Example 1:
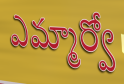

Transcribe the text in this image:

ఎమ్మార్వో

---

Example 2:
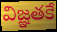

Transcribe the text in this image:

విజ్ఞతకే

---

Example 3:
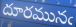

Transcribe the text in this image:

దూరమునఁ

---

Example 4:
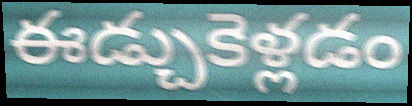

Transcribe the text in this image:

ఈడ్చుకెళ్లడం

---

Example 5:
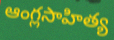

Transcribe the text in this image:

ఆంగ్లసాహిత్య